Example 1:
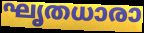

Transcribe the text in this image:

ഘൃതധാരാ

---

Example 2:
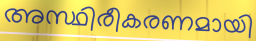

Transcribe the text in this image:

അസ്ഥിരീകരണമായി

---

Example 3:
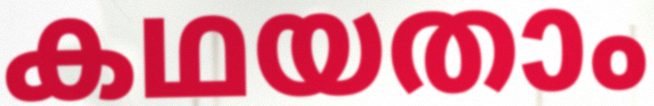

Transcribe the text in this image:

കഥയതാം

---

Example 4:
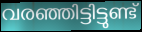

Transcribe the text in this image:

വരഞ്ഞിട്ടിട്ടുണ്ട്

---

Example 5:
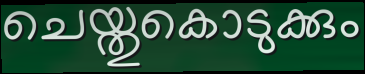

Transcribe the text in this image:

ചെയ്തുകൊടുക്കും